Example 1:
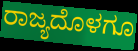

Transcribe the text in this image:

ರಾಜ್ಯದೊಳಗೂ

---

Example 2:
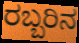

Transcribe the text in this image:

ರಬ್ಬರಿನ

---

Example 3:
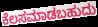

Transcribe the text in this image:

ಕೆಲಸಮಾಡಬಹುದು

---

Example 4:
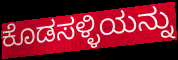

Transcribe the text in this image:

ಕೊಡಸಳ್ಳಿಯನ್ನು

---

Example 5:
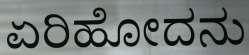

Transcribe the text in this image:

ಏರಿಹೋದನು